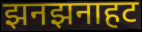
झनझनाहट